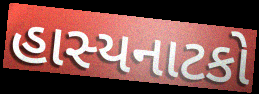
હાસ્યનાટકો